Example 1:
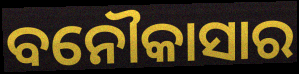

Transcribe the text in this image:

ବନୌକାସାର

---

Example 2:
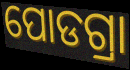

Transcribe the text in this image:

ପୋଡଗ୍ରା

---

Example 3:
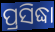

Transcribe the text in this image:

ପ୍ରସିଦ୍ଧା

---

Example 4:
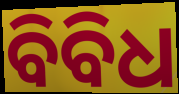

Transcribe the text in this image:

ବିବିଧ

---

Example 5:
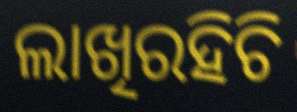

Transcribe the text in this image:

ଲାଖିରହିଚି